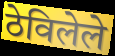
ठेविलेले